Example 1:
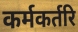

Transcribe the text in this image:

कर्मकर्तरि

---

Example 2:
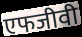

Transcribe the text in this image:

एफजीवी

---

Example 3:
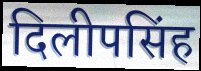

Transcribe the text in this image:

दिलीपसिंह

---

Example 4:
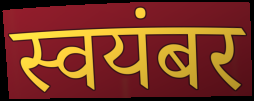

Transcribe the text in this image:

स्वयंबर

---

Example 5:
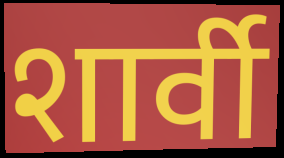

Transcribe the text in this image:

शार्वी